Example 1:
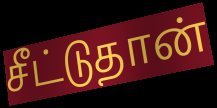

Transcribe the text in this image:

சீட்டுதான்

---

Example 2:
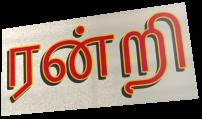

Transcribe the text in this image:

ரன்றி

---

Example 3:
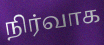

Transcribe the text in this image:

நிர்வாக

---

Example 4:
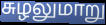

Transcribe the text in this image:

சுழலுமாறு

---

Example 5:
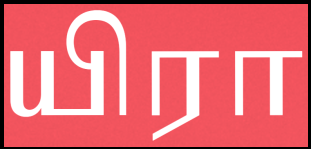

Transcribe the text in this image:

யிரா